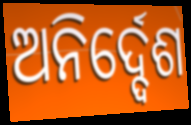
ଅନିର୍ଦ୍ଦେଶ